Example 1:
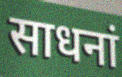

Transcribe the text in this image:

साधनां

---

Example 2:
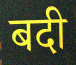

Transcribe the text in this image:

बदी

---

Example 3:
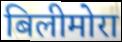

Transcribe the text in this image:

बिलीमोरा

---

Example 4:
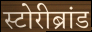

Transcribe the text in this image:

स्टोरीब्रांड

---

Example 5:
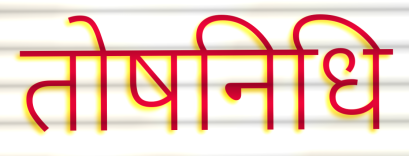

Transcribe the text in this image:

तोषनिधि